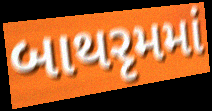
બાથરૃમમાં